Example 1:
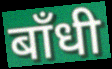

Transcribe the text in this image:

बाँधी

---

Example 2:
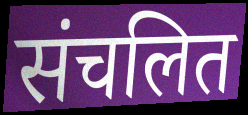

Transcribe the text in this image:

संचलित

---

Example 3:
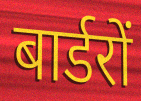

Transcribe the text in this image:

बार्डरों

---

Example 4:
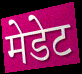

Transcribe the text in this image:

मेडेट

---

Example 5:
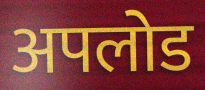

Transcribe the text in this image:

अपलोड